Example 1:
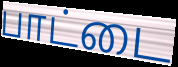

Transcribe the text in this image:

பாட்டை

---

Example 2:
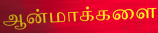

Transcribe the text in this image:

ஆன்மாக்களை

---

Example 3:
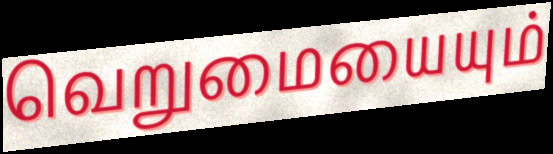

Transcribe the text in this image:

வெறுமையையும்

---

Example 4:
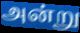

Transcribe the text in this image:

அன்று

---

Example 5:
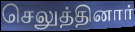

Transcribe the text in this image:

செலுத்தினார்